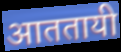
आततायी